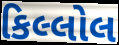
કિલ્લોલ